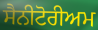
ਸੈਨੀਟੋਰੀਅਮ